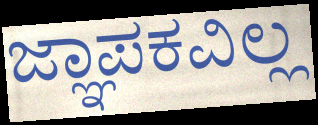
ಜ್ಞಾಪಕವಿಲ್ಲ